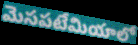
మెసపటేమియాలో